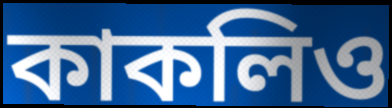
কাকলিও